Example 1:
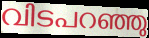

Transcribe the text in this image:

വിടപറഞ്ഞു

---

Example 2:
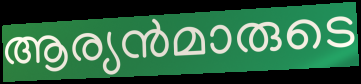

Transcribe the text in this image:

ആര്യൻമാരുടെ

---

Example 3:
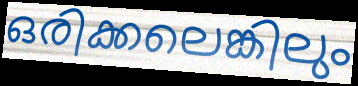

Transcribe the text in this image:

ഒരിക്കലെങ്കിലും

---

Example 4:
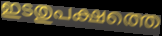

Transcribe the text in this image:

ഇടതുപക്ഷത്തെ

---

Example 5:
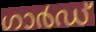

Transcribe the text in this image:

ഗാർഡ്